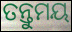
ତନ୍ତୁମୟ